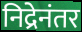
निद्रेनंतर